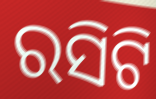
ରସିଟି